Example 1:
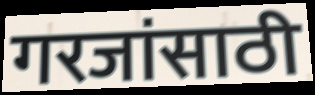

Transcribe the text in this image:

गरजांसाठी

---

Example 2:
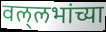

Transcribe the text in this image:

वल्लभांच्या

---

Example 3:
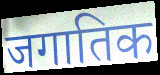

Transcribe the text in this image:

जगातिक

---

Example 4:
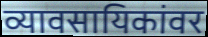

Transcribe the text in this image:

व्यावसायिकांवर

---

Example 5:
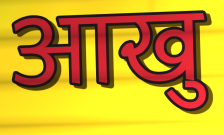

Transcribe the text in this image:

आखु